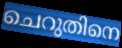
ചെറുതിനെ